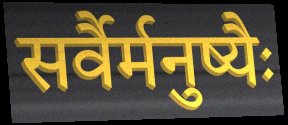
सर्वैर्मनुष्यैः